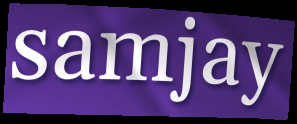
samjay